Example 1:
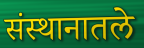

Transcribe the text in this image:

संस्थानातले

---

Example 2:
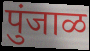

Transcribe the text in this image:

पुंजाळ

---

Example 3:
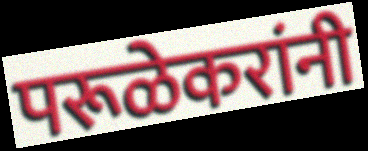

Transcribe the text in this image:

परूळेकरांनी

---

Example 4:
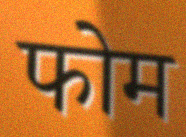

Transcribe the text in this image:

फोम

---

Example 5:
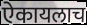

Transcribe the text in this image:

ऐकायलाच